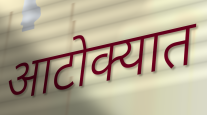
आटोक्यात